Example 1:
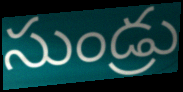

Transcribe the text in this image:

సుండ్రు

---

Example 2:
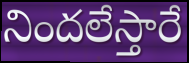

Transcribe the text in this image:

నిందలేస్తారే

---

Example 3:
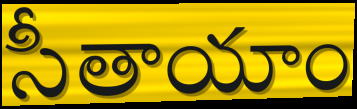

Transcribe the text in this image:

సీతాయాం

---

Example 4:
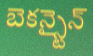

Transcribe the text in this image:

బెకన్స్టైన్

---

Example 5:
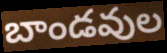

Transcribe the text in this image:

బాండవుల